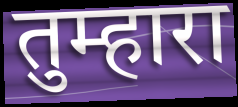
तुम्‍हारा